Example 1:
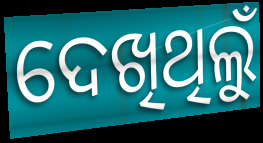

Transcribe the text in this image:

ଦେଖିଥିଲୁଁ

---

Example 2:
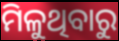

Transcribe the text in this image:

ମିଳୁଥିବାରୁ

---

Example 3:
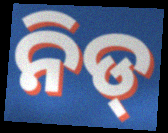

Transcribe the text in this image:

ନିଡ୍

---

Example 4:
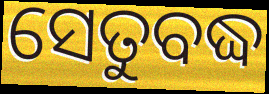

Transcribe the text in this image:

ସେତୁବଦ୍ଧ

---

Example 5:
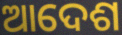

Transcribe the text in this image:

ଆଦେଶ